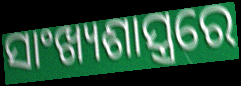
ସାଂଖ୍ୟଶାସ୍ତ୍ରରେ